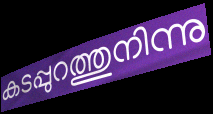
കടപ്പുറത്തുനിന്നു